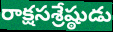
రాక్షసశ్రేష్ఠుడు